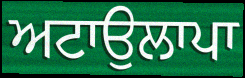
ਅਟਾਉਲਾਪਾ